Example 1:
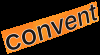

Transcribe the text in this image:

convent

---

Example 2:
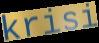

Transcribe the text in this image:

krisi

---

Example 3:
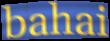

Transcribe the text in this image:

bahai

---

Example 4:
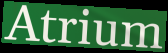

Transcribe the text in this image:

Atrium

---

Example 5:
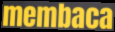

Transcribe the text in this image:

membaca